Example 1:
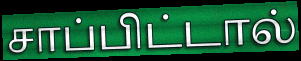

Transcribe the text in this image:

சாப்பிட்டால்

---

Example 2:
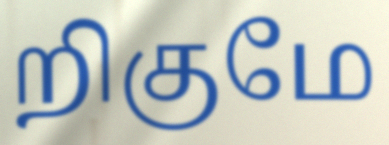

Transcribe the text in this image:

றிகுமே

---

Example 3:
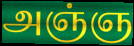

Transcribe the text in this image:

அஞ்ஞ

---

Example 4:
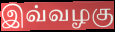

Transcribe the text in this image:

இவ்வழகு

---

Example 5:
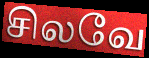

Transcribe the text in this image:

சிலவே